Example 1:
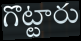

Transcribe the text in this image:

గొట్టారు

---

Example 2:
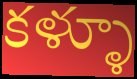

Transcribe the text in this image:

కళ్ళూ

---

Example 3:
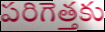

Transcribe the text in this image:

పరిగెత్తకు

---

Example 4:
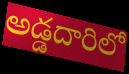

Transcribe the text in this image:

అడ్డదారిలో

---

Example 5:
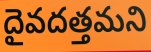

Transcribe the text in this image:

దైవదత్తమని